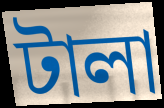
টালা